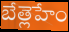
బేత్లెహేం